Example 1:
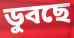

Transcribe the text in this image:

ডুবছে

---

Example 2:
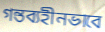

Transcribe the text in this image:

গন্তব্যহীনভাবে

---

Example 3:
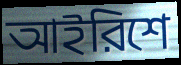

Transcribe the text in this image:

আইরিশে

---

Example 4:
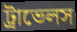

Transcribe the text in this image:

ট্রাভেলস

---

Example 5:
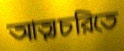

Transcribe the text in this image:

আত্মচরিতে